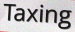
Taxing